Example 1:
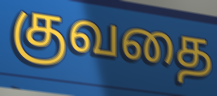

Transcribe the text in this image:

குவதை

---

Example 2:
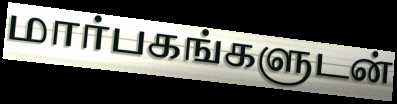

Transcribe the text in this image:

மார்பகங்களுடன்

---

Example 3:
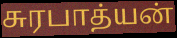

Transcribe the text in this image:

சுரபாத்யன்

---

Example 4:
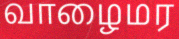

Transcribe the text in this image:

வாழைமர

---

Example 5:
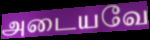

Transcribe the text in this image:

அடையவே